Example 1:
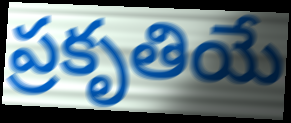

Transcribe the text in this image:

ప్రకృతియే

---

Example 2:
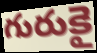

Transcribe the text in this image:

గురుకై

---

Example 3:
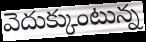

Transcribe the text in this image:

వెదుక్కుంటున్న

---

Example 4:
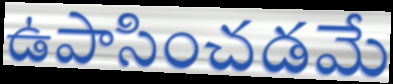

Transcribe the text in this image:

ఉపాసించడమే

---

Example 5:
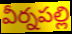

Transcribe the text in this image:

వీర్నపల్లి